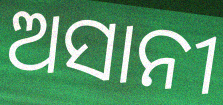
ଅସାନୀ